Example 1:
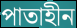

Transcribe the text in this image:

পাতাহীন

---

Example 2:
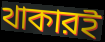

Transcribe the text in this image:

থাকারই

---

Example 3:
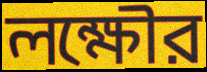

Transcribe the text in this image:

লক্ষৌর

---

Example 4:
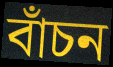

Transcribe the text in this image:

বাঁচন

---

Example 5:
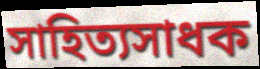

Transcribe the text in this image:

সাহিত্যসাধক